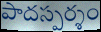
పాదస్పర్శం